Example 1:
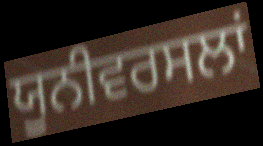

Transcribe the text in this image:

ਯੂਨੀਵਰਸਲਾਂ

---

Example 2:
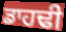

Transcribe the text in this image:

ਡਾਹਢੀ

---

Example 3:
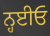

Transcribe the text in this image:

ਨ੍ਹਈਓ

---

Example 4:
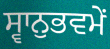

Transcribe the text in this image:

ਸ੍ਵਾਨੁਭਵਮੇਂ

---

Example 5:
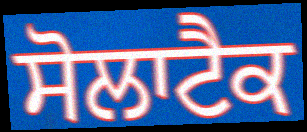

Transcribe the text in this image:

ਸੋਲਾਟੈਕ